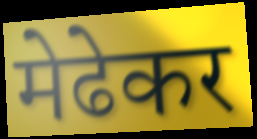
मेढेकर